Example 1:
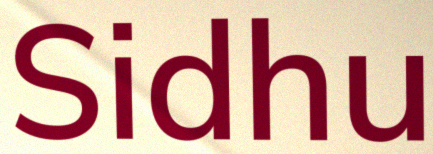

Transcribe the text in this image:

Sidhu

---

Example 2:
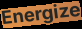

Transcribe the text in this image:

Energize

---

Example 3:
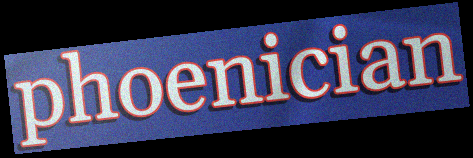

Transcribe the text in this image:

phoenician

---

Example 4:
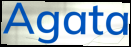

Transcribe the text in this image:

Agata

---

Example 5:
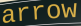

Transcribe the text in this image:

arrow